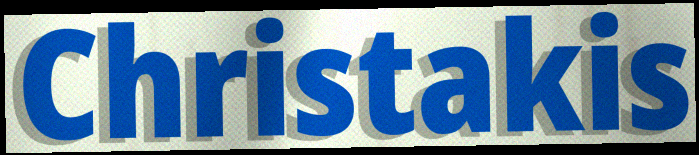
Christakis